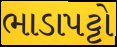
ભાડાપટ્ટો